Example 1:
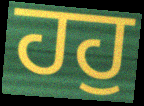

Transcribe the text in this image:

ਹਹੁ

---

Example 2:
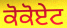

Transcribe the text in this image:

ਕੋਕੋਏਟ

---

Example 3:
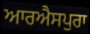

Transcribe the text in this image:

ਆਰਐਸਪੁਰਾ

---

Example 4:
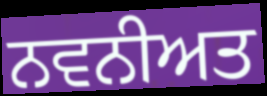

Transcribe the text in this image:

ਨਵਨੀਅਤ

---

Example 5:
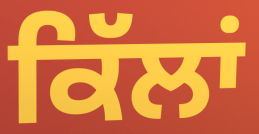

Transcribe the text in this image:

ਕਿੱਲਾਂ